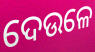
ଦେଉଳେ